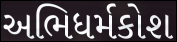
અભિધર્મકોશ